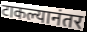
टाकल्यानंतर